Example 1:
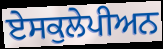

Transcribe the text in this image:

ਏਸਕੁਲੇਪੀਅਨ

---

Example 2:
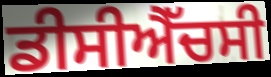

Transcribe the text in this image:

ਡੀਸੀਐੱਚਸੀ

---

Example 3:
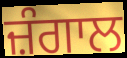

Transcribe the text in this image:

ਜ਼ੰਗਾਲ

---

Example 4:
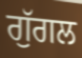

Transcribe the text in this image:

ਗੁੱਗਲ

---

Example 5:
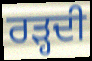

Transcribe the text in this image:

ਰੜ੍ਹਦੀ